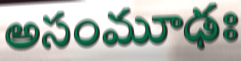
అసంమూఢః